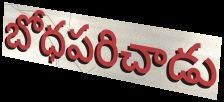
బోధపరిచాడు